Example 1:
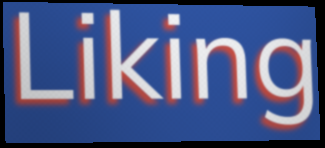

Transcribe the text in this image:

Liking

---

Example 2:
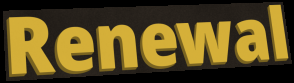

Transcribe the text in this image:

Renewal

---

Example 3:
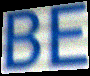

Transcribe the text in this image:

BE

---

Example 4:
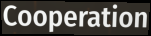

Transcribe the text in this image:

Cooperation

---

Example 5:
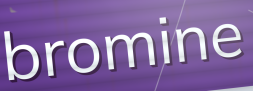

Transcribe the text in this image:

bromine